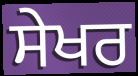
ਸੇਖਰ